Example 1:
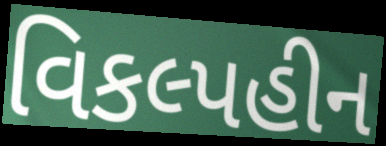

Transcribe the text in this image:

વિકલ્પહીન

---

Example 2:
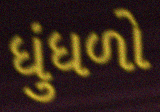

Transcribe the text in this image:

ધુંધળો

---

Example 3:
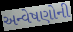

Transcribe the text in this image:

અન્વેષણોની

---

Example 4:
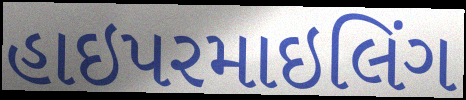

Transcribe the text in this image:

હાઇપરમાઇલિંગ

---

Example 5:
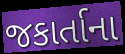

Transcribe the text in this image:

જકાર્તાના